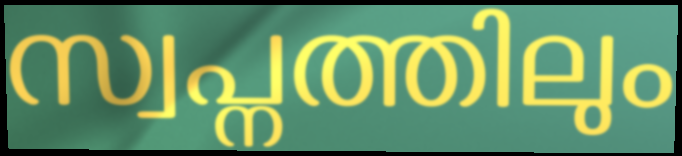
സ്വപ്നത്തിലും